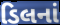
ડિલનાં